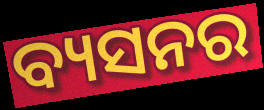
ବ୍ୟସନର